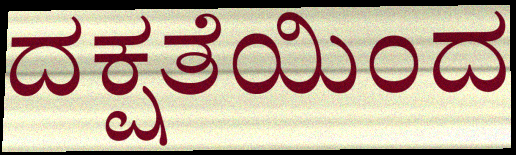
ದಕ್ಷತೆಯಿಂದ